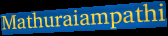
Mathuraiampathi